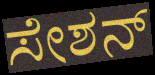
ಸೇಶನ್